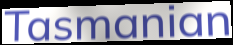
Tasmanian